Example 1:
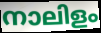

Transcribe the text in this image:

നാലിളം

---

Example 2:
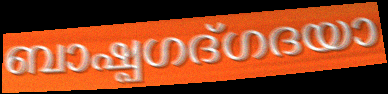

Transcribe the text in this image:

ബാഷ്പഗദ്ഗദയാ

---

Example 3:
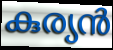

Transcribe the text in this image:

കുര്യൻ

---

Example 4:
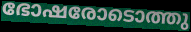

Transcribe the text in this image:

ഭോഷരോടൊത്തു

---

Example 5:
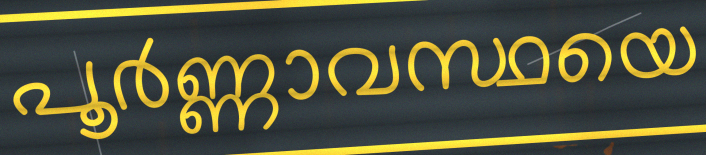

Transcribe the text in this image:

പൂർണ്ണാവസ്ഥയെ